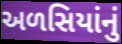
અળસિયાંનું